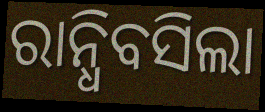
ରାନ୍ଧିବସିଲା